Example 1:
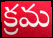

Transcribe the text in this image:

క్రమ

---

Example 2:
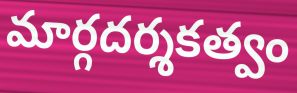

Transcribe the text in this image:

మార్గదర్శకత్వం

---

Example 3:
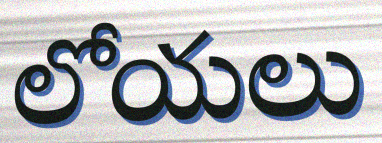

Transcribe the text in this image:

లోయలు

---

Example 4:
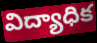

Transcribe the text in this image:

విద్యాధిక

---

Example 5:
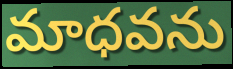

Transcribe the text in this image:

మాధవను